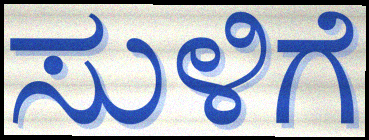
ಸುಳಿಗೆ